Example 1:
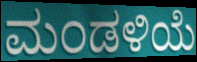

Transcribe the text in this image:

ಮಂಡಳಿಯೆ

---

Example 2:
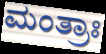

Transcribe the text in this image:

ಮಂತ್ರಾಃ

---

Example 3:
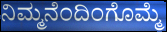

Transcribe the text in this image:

ನಿಮ್ಮನೆಂದಿಂಗೊಮ್ಮೆ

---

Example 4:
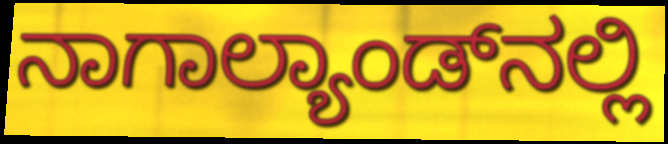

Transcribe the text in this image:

ನಾಗಾಲ್ಯಾಂಡ್‌ನಲ್ಲಿ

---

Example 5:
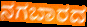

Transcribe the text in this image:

ನಗಬಾರದ